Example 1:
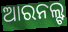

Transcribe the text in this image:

ଆରନଲ୍ଟ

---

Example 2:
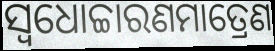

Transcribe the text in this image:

ସ୍ଵଧୋଚ୍ଚାରଣମାତ୍ରେଣ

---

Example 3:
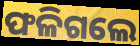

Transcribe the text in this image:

ଫଳିଗଲେ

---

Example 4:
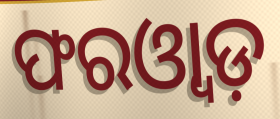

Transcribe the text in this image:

ଫରଓ୍ୱାଡ଼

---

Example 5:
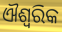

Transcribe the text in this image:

ଐଶ୍ୱରିକ